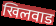
खिलवाड